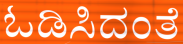
ಓಡಿಸಿದಂತೆ